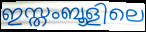
ഇസ്തംബൂളിലെ